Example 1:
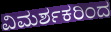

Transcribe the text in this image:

ವಿಮರ್ಶಕರಿಂದ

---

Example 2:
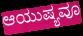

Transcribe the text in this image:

ಆಯುಷ್ಯವೂ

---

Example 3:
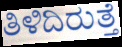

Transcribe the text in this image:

ತಿಳಿದಿರುತ್ತೆ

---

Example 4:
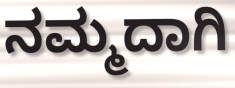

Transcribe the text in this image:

ನಮ್ಮದಾಗಿ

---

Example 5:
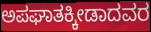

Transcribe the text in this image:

ಅಪಘಾತಕ್ಕೀಡಾದವರ